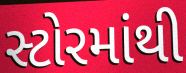
સ્ટોરમાંથી